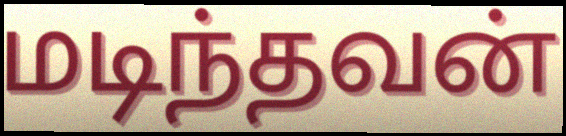
மடிந்தவன்